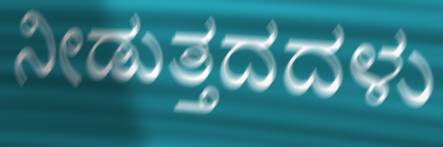
ನೀಡುತ್ತದದಳು